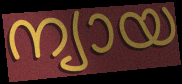
ന്യായ